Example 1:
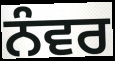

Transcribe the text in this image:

ਨੰਵਰ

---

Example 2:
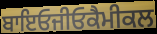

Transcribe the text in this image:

ਬਾਇਓਜੀਓਕੈਮੀਕਲ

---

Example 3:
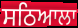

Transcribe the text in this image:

ਸਠਿਆਲਾ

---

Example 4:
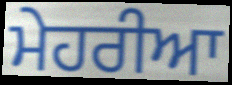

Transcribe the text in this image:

ਮੇਹਰੀਆ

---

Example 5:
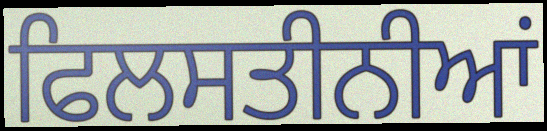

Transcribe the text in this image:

ਫਿਲਸਤੀਨੀਆਂ